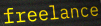
freelance